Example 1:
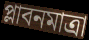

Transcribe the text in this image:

প্লাবনমাত্রা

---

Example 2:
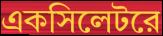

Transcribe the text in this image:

একসিলেটরে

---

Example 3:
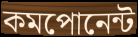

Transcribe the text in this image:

কমপোনেন্ট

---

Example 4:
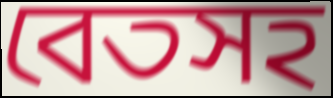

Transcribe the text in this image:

বেতসহ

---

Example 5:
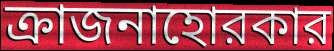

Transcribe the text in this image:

ক্রাজনাহোরকার